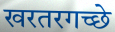
खरतरगच्छे